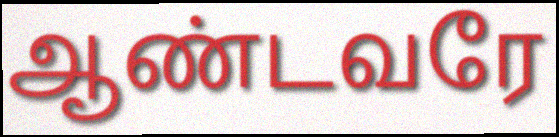
ஆண்டவரே